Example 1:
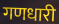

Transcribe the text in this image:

गणधारी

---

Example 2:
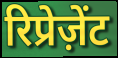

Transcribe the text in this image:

रिप्रेज़ेंट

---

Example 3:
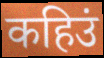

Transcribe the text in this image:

कहिउं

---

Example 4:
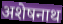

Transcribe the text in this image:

अशेषनाथ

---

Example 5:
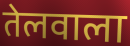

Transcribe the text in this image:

तेलवाला